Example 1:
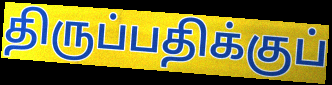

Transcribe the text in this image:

திருப்பதிக்குப்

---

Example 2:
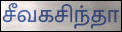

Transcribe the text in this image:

சீவகசிந்தா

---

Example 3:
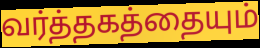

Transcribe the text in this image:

வர்த்தகத்தையும்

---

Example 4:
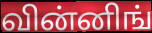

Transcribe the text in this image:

வின்னிங்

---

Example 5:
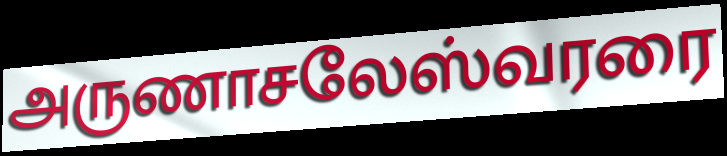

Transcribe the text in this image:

அருணாசலேஸ்வரரை